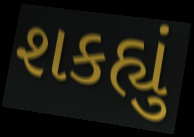
શકહ્યું